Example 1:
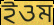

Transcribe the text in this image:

ইওম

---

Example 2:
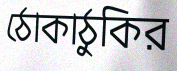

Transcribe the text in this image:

ঠোকাঠুকির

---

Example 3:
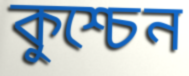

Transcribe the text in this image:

কুশ্চেন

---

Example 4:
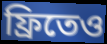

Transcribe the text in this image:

ফ্রিতেও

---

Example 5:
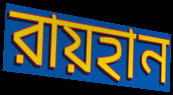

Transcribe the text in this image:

রায়হান